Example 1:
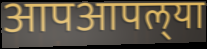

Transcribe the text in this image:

आपआपल्या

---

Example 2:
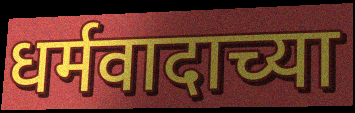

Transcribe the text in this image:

धर्मवादाच्या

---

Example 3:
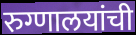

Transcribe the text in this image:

रुग्णालयांची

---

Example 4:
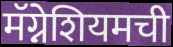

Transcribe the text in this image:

मॅग्नेशियमची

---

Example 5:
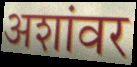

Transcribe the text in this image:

अशांवर